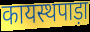
कायस्थपाड़ा